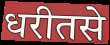
धरीतसे